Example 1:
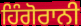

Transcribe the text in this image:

ਹਿੰਗੋਰਾਨੀ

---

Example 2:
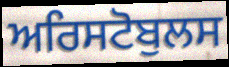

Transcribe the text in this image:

ਅਰਿਸਟੋਬੁਲਸ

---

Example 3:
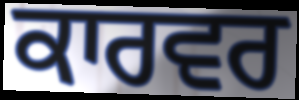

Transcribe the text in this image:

ਕਾਰਵਰ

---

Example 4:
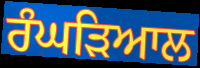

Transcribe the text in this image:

ਰੰਘੜਿਆਲ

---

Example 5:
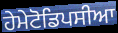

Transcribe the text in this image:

ਹੇਮੇਟੋਡਿਪਸੀਆ